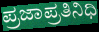
ಪ್ರಜಾಪ್ರತಿನಿಧಿ